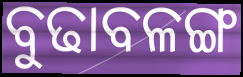
ବୁଢାବଳଙ୍ଗ